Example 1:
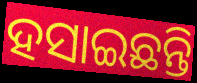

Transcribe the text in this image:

ହସାଇଛନ୍ତି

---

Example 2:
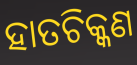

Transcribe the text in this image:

ହାତଚିକ୍କଣ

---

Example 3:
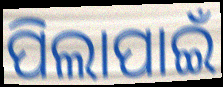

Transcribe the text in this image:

ପିଲାପାଇଁ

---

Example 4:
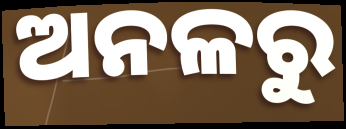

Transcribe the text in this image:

ଅନଳରୁ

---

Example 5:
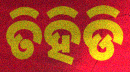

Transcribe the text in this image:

ତିହିଡି